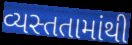
વ્યસ્તતામાંથી